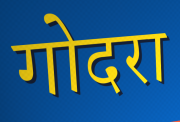
गोदरा